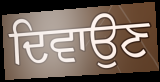
ਦਿਵਾਉਣ